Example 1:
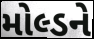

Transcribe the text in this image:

મોલ્ડને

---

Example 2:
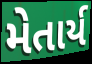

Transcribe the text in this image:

મેતાર્ય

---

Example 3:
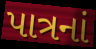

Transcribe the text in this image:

પાત્રનાં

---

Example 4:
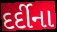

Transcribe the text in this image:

દર્દીના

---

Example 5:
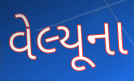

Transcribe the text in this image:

વેલ્યૂના